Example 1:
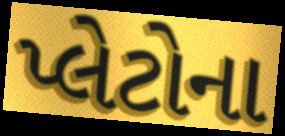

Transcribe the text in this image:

પ્લેટોના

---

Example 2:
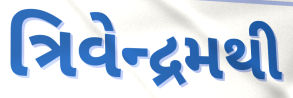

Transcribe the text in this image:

ત્રિવેન્દ્રમથી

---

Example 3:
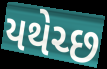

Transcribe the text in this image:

યથેચ્છ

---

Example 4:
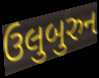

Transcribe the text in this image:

ઉલુબુરુન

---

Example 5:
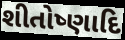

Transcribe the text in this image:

શીતોષ્ણાદિ